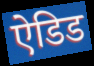
ऐडिड